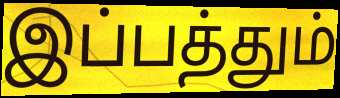
இப்பத்தும்